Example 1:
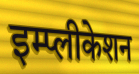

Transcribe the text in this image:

इम्प्लीकेशन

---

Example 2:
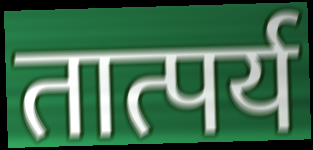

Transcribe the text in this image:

तात्पर्य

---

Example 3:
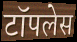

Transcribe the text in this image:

टॉपलेस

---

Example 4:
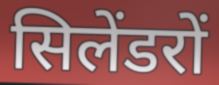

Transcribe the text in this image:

सिलेंडरों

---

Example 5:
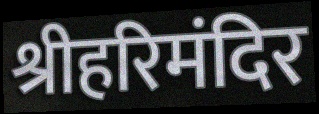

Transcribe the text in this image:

श्रीहरिमंदिर